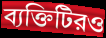
ব্যক্তিটিরও